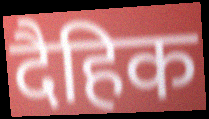
दैहिक